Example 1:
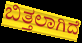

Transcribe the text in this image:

ಬಿತ್ತಲಾಗಿದೆ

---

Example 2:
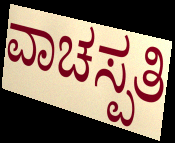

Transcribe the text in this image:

ವಾಚಸ್ಪತಿ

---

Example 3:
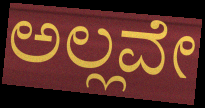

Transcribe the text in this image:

ಅಲ್ಲವೇ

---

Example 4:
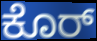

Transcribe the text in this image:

ಕೊರ್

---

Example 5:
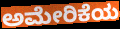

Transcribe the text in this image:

ಅಮೇರಿಕೆಯ